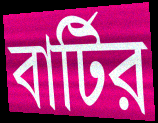
বার্টির